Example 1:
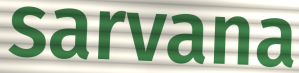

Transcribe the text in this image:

sarvana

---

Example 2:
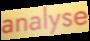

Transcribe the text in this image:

analyse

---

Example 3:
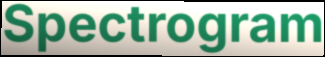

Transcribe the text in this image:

Spectrogram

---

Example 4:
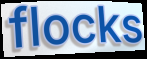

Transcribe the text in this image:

flocks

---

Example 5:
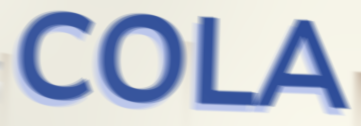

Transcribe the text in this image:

COLA